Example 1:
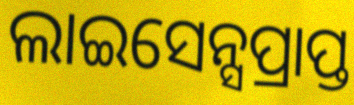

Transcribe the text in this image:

ଲାଇସେନ୍ସପ୍ରାପ୍ତ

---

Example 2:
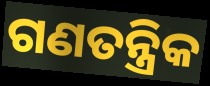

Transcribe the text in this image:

ଗଣତନ୍ତ୍ରିକ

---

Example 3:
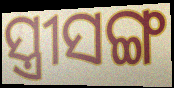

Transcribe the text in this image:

ସ୍ତ୍ରୀସଙ୍ଗ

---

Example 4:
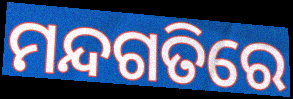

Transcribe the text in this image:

ମନ୍ଦଗତିରେ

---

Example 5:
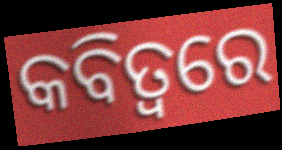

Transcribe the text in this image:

କବିତ୍ୱରେ